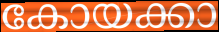
കോയക്കാ